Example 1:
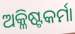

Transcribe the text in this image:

ଅକ୍ଳିଷ୍ଟକର୍ମା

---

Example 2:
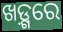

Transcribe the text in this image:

ଖଡ଼୍ଗରେ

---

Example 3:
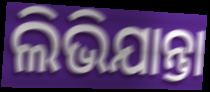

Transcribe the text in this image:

ଲିଭିଯାନ୍ତା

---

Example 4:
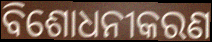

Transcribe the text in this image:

ବିଶୋଧନୀକରଣ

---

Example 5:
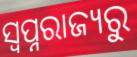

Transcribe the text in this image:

ସ୍ୱପ୍ନରାଜ୍ୟରୁ